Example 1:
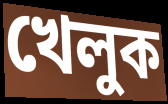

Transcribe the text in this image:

খেলুক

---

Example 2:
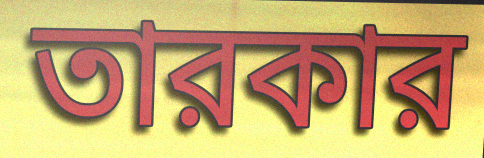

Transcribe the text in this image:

তারকার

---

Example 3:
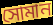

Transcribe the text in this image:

সোমান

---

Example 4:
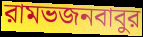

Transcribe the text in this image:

রামভজনবাবুর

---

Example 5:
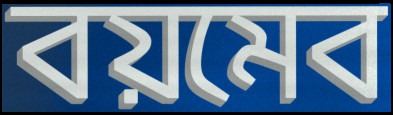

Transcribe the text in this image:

বয়মেব